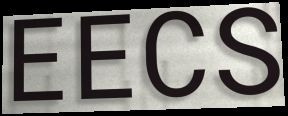
EECS